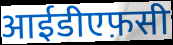
आईडीएफ़सी